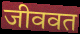
जीववत